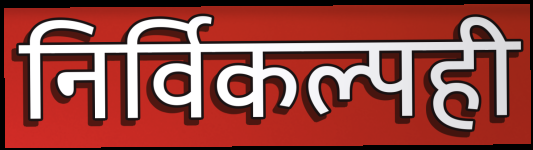
निर्विकल्पही